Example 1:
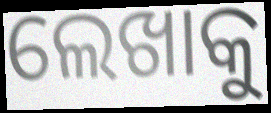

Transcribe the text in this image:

ଲେଖାକୁ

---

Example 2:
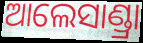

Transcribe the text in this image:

ଆଲେସାଣ୍ଡ୍ରା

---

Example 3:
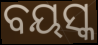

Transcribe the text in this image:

ବୟସ୍କ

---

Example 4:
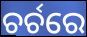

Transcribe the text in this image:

ଚର୍ଚରେ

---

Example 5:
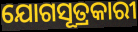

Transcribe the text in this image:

ଯୋଗସୂତ୍ରକାରୀ